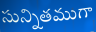
సున్నితముగా